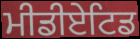
ਮੀਡੀਏਟਿਡ